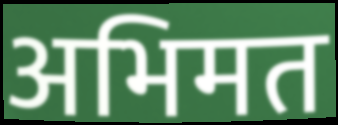
अभिमत